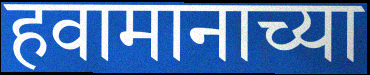
हवामानाच्या